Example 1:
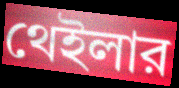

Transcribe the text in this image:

থেইলার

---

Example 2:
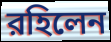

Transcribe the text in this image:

রহিলেন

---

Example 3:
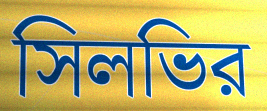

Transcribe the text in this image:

সিলভির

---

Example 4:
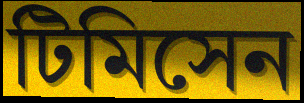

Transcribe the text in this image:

টিমিসেন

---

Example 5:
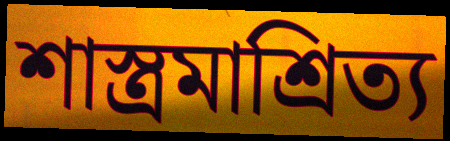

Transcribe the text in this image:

শাস্ত্রমাশ্রিত্য